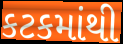
કટકમાંથી